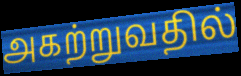
அகற்றுவதில்